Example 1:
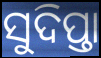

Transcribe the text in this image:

ସୁଦିପ୍ତା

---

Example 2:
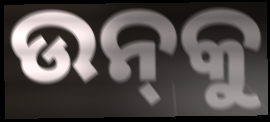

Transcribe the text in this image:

ଉନ୍‌କୁ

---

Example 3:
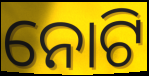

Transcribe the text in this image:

ନୋଟି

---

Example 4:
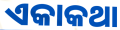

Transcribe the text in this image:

ଏକାକଥା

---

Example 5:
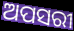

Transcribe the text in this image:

ଅପସରୀ